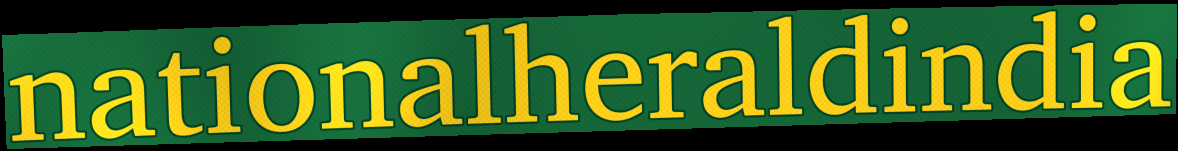
nationalheraldindia